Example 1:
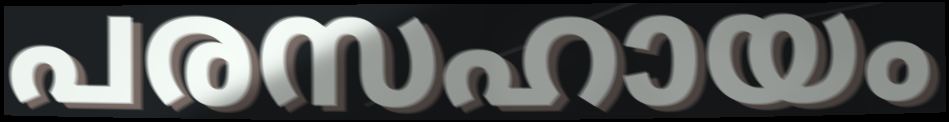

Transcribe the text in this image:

പരസഹായം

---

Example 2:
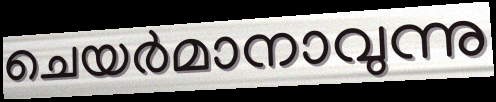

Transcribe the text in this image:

ചെയർമാനാവുന്നു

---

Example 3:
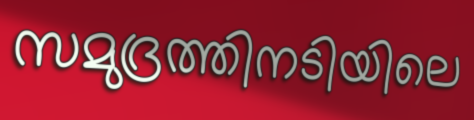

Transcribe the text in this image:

സമുദ്രത്തിനടിയിലെ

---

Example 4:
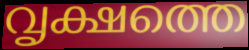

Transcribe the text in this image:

വൃക്ഷത്തെ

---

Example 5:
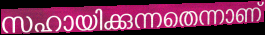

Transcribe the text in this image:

സഹായിക്കുന്നതെന്നാണ്